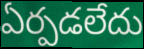
ఏర్పడలేదు